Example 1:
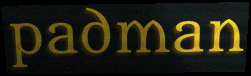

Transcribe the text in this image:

padman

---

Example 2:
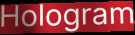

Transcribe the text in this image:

Hologram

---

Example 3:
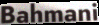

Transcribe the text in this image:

Bahmani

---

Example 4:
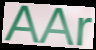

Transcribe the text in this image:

AAr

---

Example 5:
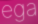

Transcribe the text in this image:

ega